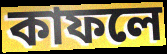
কাফলে